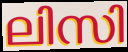
ലിസി